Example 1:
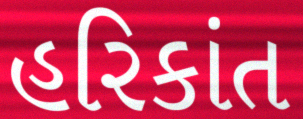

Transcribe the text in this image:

હરિકાંત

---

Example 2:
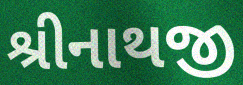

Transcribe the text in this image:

શ્રીનાથજી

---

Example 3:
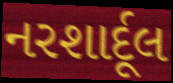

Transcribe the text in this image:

નરશાર્દૂલ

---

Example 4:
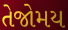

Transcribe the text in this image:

તેજોમય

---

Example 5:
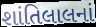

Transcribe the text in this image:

શાંતિલાલનાં